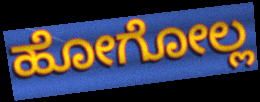
ಹೋಗೋಲ್ಲ